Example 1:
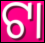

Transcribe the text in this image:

ଟା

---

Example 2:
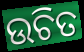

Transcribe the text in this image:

ଉଚିତ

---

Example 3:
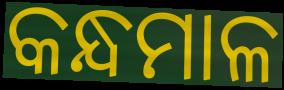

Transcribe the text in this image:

କନ୍ଧମାଳ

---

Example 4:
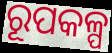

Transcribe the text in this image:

ରୂପକଳ୍ପ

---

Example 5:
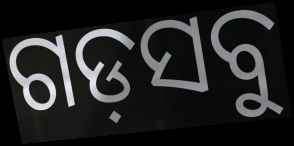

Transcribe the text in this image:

ଗଡ଼ସବୁ